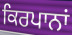
ਕਿਰਪਾਨਾਂ